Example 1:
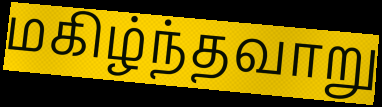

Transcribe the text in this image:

மகிழ்ந்தவாறு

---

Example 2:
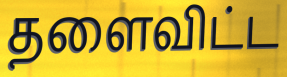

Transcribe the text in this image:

தளைவிட்ட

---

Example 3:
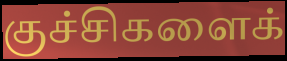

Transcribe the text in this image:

குச்சிகளைக்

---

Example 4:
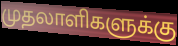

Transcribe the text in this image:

முதலாளிகளுக்கு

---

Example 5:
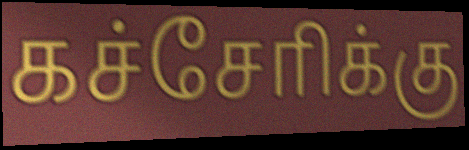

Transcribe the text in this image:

கச்சேரிக்கு